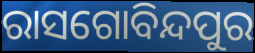
ରାସଗୋବିନ୍ଦପୁର